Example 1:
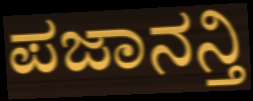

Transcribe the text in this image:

ಪಜಾನನ್ತಿ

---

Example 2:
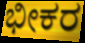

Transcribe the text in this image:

ಭೀಕರ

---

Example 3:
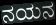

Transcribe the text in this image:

ನಯನ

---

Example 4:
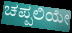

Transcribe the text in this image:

ಚಪ್ಪಲಿಯೇ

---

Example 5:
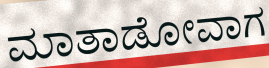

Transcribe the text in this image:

ಮಾತಾಡೋವಾಗ